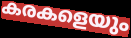
കരകളെയും